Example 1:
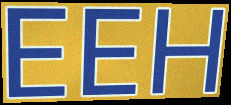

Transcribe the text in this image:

EEH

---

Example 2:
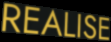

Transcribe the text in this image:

REALISE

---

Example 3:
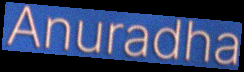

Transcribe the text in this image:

Anuradha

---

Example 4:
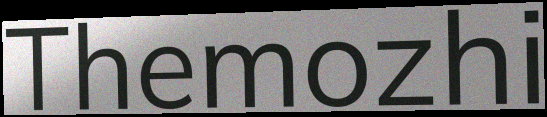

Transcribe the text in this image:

Themozhi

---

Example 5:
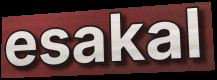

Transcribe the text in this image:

esakal